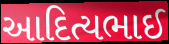
આદિત્યભાઈ